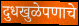
दुधखुळेपणाचे